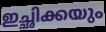
ഇച്ഛിക്കയും